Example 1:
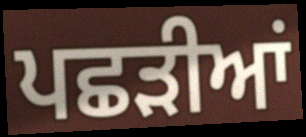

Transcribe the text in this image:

ਪਛੜੀਆਂ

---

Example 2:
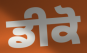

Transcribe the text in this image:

ਡੀਕੋ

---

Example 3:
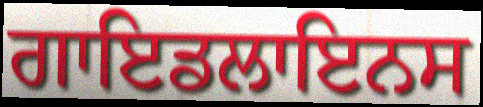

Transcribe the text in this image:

ਗਾਇਡਲਾਇਨਸ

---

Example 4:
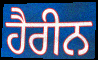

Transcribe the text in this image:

ਹੈਰੀਨ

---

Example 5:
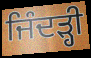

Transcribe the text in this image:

ਜਿੰਦੜ੍ਹੀ